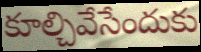
కూల్చివేసేందుకు